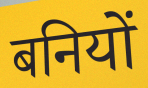
बनियों